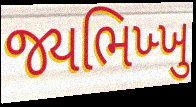
જ્યભિખ્ખુ